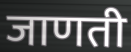
जाणती